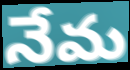
నేమ